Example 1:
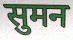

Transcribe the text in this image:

सुमन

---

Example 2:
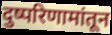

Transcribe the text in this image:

दुष्परिणामांतून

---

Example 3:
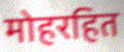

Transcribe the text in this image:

मोहरहित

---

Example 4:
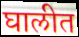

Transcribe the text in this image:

घालीत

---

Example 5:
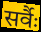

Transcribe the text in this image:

सर्वैः